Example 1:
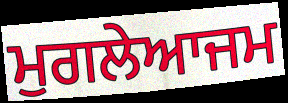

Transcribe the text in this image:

ਮੁਗਲੇਆਜਮ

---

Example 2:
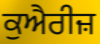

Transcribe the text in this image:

ਕੁਐਰੀਜ਼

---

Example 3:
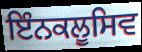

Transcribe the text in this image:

ਇੰਨਕਲੂਸਿਵ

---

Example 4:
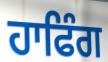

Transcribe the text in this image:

ਹਾਫਿੰਗ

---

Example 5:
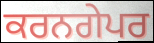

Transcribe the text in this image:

ਕਰਨਗੇਪਰ